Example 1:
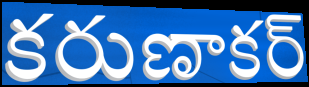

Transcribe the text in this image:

కరుణాకర్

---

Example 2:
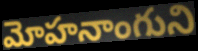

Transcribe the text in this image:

మోహనాంగుని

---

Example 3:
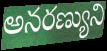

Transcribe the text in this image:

అనరణ్యుని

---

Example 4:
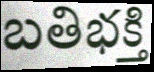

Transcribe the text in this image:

బతిభక్తి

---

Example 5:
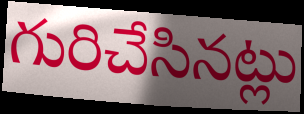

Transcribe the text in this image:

గురిచేసినట్లు